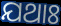
ଯଥାଃ